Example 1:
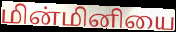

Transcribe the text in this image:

மின்மினியை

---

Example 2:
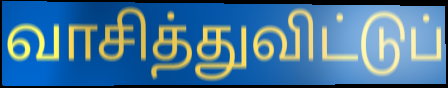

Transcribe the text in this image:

வாசித்துவிட்டுப்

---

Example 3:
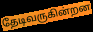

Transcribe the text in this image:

தேடிவருகின்றன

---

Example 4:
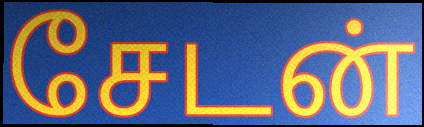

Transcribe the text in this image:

சேடன்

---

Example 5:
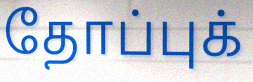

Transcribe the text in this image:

தோப்புக்